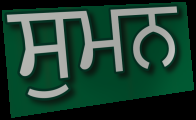
ਸੁਮਨ